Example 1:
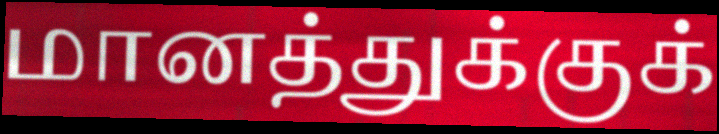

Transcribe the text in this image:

மானத்துக்குக்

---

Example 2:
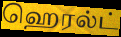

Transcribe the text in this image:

ஹெரல்ட்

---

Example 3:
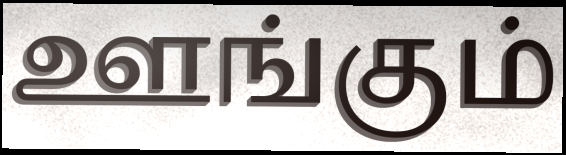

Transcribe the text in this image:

ஊங்கும்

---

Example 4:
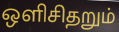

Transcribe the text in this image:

ஒளிசிதறும்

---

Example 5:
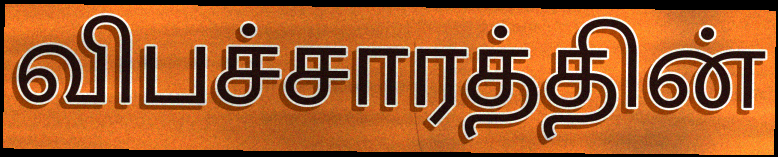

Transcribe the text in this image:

விபச்சாரத்தின்